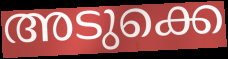
അടുക്കെ